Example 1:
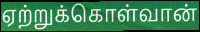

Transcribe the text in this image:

ஏற்றுக்கொள்வான்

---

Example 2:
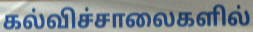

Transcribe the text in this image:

கல்விச்சாலைகளில்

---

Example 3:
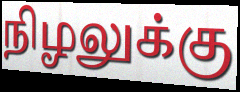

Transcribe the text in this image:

நிழலுக்கு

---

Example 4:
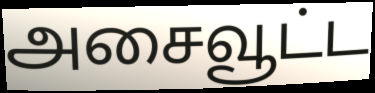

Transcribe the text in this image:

அசைவூட்ட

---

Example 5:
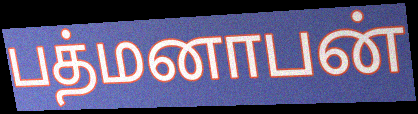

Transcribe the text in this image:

பத்மனாபன்